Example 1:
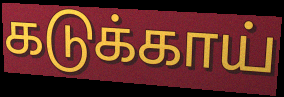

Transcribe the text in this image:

கடுக்காய்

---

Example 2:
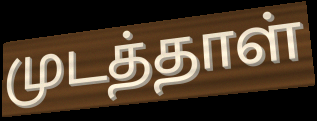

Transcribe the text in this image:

முடத்தாள்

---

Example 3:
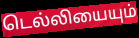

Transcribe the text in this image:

டெல்லியையும்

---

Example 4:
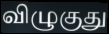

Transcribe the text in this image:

விழுகுது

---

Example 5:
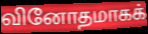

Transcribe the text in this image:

வினோதமாகக்